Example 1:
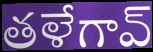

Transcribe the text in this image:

తళేగావ్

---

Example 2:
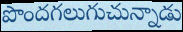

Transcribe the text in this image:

పొందగలుగుచున్నాడు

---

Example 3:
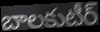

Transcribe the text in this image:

బాలకుటీర్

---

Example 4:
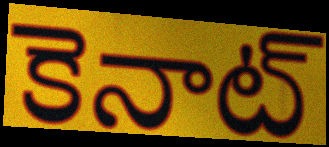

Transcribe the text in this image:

కెనాట్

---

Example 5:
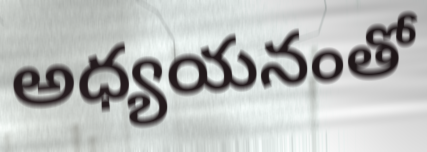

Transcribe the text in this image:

అధ్యయనంతో